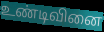
உண்டிவினை